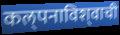
कल्पनाविश्वाची